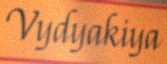
Vydyakiya